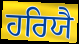
ਹਰਿਯੈ